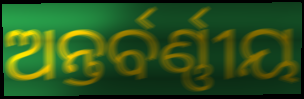
ଅନ୍ତର୍ବର୍ଣ୍ଣୀୟ